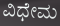
ವಿಧೇಮ